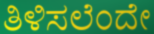
ತಿಳಿಸಲೆಂದೇ